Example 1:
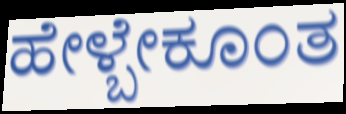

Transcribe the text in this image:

ಹೇಳ್ಬೇಕೂಂತ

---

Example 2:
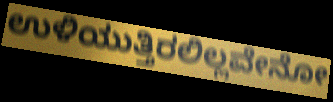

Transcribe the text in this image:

ಉಳಿಯುತ್ತಿರಲಿಲ್ಲವೇನೋ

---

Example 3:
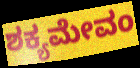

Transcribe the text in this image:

ಶಕ್ಯಮೇವಂ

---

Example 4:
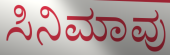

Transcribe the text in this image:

ಸಿನಿಮಾವು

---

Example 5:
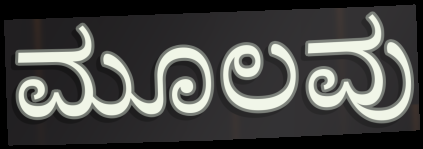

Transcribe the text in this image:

ಮೂಲವು